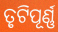
ତୃଟିପୂର୍ଣ୍ଣ